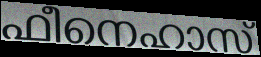
ഫീനെഹാസ്